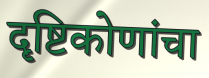
दृष्टिकोणांचा